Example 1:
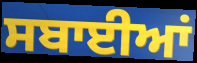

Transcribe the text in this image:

ਸਬਾਈਆਂ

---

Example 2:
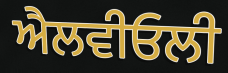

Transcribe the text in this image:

ਐਲਵੀਓਲੀ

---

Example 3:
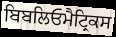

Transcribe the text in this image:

ਬਿਬਲਿਓਮੈਟ੍ਰਿਕਸ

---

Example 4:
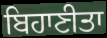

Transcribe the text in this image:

ਬਿਹਾਣੀਤਾ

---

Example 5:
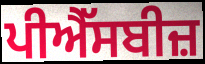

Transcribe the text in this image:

ਪੀਐੱਸਬੀਜ਼